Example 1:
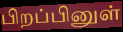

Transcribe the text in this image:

பிறப்பினுள்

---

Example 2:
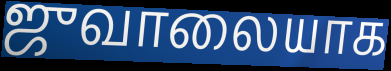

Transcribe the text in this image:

ஜுவாலையாக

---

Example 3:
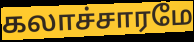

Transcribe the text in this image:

கலாச்சாரமே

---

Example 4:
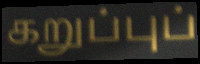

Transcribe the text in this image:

கறுப்புப்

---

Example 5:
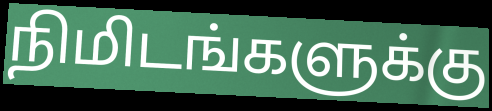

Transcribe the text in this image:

நிமிடங்களுக்கு